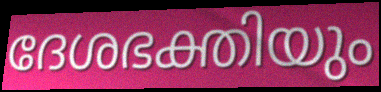
ദേശഭക്തിയും